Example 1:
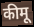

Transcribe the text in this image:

कीमू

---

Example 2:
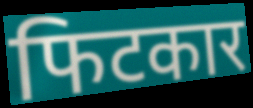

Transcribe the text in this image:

फिटकार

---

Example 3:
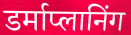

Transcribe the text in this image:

डर्माप्लानिंग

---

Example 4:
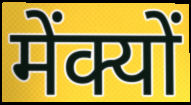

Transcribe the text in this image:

मेंक्यों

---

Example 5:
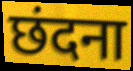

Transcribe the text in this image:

छंदना